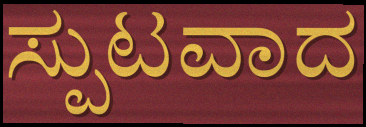
ಸ್ಪುಟವಾದ